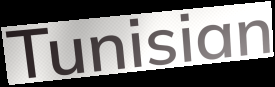
Tunisian